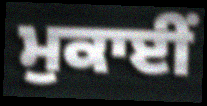
ਮੁਕਾਈਂ